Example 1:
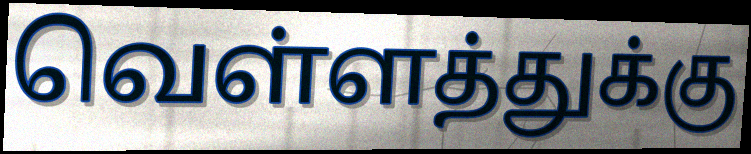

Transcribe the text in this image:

வெள்ளத்துக்கு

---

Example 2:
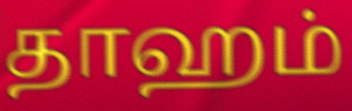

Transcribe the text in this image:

தாஹம்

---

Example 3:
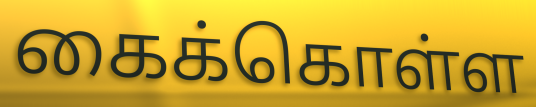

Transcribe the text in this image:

கைக்கொள்ள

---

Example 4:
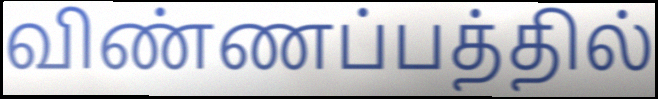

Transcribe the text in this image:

விண்ணப்பத்தில்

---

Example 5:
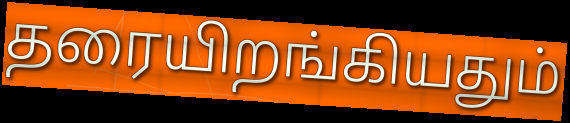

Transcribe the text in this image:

தரையிறங்கியதும்